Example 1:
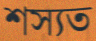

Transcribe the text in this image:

শস্যত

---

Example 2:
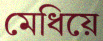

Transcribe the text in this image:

মেধিয়ে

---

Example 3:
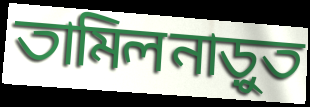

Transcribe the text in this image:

তামিলনাড়ুত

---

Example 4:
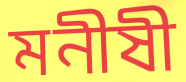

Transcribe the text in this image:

মনীষী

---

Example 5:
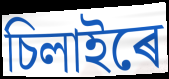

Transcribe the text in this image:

চিলাইৰে